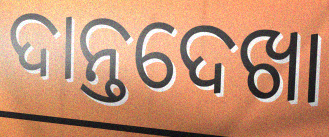
ଦାନ୍ତଦେଖା